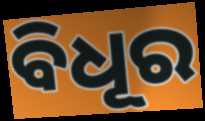
ବିଧୂର